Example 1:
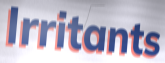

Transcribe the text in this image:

Irritants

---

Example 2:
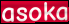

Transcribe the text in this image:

asoka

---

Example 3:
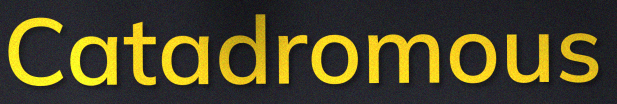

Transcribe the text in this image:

Catadromous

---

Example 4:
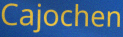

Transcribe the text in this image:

Cajochen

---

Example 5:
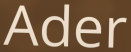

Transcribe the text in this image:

Ader